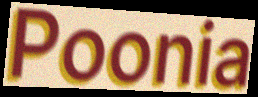
Poonia